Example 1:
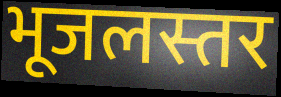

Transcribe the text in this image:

भूजलस्तर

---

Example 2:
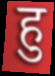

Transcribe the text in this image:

हु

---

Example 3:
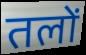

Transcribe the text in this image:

तलों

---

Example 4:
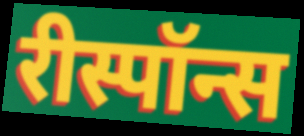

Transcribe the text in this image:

रीस्पॉन्स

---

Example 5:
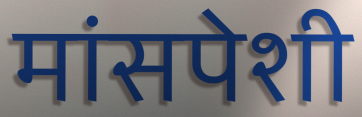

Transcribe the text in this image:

मांसपेशी